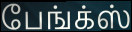
பேங்க்ஸ்